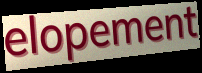
elopement